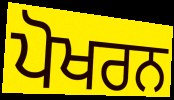
ਪੋਖਰਨ